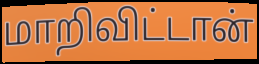
மாறிவிட்டான்